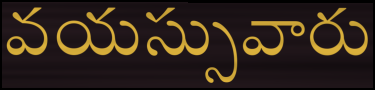
వయస్సువారు